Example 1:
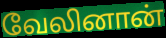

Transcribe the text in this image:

வேலினான்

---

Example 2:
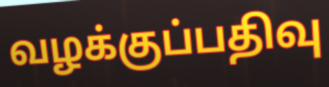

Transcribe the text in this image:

வழக்குப்பதிவு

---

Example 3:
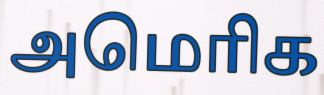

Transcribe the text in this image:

அமெரிக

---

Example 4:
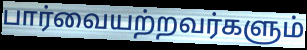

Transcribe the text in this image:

பார்வையற்றவர்களும்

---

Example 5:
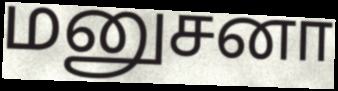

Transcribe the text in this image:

மனுசனா